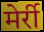
मेर्री